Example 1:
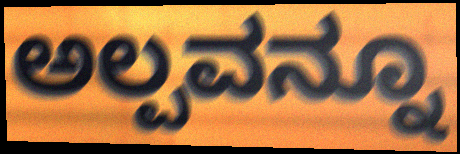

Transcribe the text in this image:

ಅಲ್ಪವನ್ನೂ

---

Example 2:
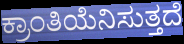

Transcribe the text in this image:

ಕ್ರಾಂತಿಯೆನಿಸುತ್ತದೆ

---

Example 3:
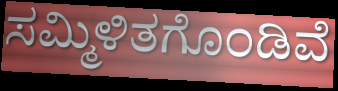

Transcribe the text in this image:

ಸಮ್ಮಿಳಿತಗೊಂಡಿವೆ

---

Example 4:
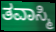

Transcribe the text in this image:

ತವಾಸ್ಮಿ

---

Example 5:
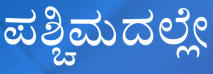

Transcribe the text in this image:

ಪಶ್ಚಿಮದಲ್ಲೇ